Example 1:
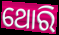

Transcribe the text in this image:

ଥୋରି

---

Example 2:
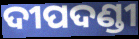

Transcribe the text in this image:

ଦୀପଦଣ୍ଡୀ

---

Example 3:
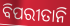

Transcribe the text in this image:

ବିପରୀତାନି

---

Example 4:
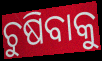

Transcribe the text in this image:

ଚୁଷିବାକୁ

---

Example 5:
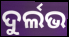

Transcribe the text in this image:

ଦୁର୍ଲଭ